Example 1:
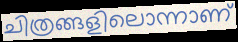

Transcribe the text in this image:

ചിത്രങ്ങളിലൊന്നാണ്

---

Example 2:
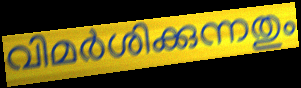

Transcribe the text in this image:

വിമർശിക്കുന്നതും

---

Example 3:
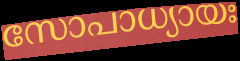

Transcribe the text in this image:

സോപാധ്യായഃ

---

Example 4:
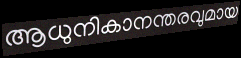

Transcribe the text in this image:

ആധുനികാനന്തരവുമായ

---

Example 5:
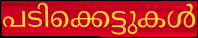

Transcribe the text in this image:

പടിക്കെട്ടുകൾ